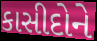
કાસીદોને